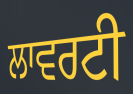
ਲਾਵਰਟੀ